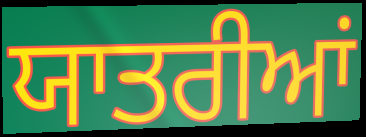
ਯਾਤਰੀਆਂ